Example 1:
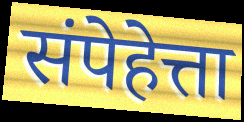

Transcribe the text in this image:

संपेहेत्ता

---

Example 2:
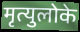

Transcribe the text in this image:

मृत्युलोके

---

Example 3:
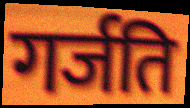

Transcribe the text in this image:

गर्जति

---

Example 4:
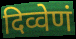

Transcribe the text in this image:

दिव्वेणं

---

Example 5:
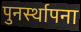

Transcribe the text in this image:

पुनर्स्थापना